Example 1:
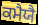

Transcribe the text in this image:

ਕਮੈਯੈ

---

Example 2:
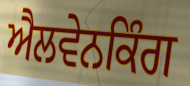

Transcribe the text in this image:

ਐਲਵੇਨਕਿੰਗ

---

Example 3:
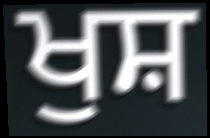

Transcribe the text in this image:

ਖੁਸ਼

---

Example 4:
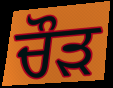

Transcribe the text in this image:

ਚੌੜ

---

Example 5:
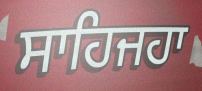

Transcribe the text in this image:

ਸਾਹਿਜਹਾ